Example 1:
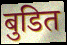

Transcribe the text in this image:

बुडित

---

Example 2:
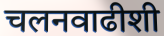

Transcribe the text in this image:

चलनवाढीशी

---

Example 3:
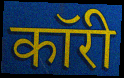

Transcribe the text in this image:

कॉरी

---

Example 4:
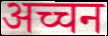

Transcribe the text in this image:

अच्चन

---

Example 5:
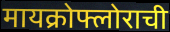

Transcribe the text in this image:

मायक्रोफ्लोराची